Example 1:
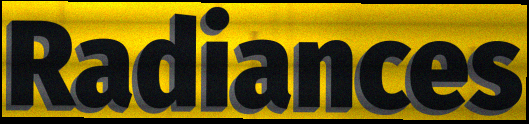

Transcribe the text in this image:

Radiances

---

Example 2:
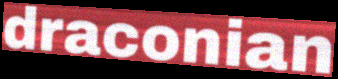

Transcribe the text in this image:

draconian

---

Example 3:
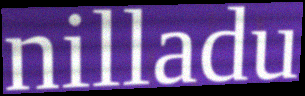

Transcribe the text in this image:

nilladu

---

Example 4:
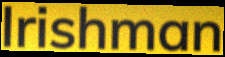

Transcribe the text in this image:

Irishman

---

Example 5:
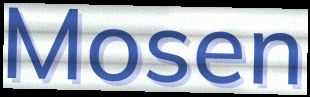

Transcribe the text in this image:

Mosen